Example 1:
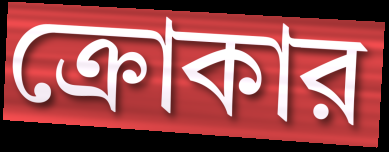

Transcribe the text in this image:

ক্রোকার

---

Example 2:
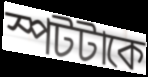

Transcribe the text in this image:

স্পটটাকে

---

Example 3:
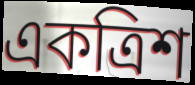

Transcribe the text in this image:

একত্রিশ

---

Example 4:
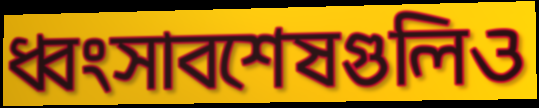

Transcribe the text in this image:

ধ্বংসাবশেষগুলিও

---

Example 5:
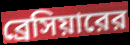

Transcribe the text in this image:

ব্রেসিয়ারের